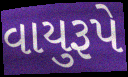
વાયુરૂપે